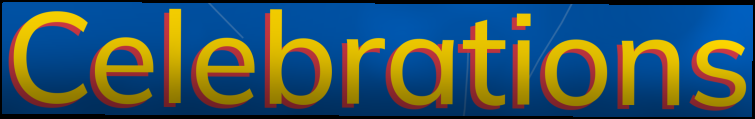
Celebrations